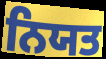
ਨਿਯਤ